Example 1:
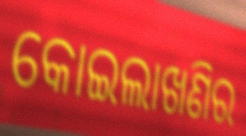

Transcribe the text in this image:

କୋଇଲାଖଣିର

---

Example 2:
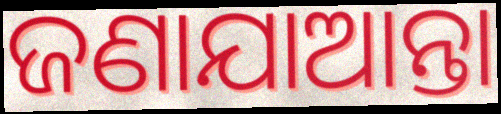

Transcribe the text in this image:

ଜଣାଯାଆନ୍ତା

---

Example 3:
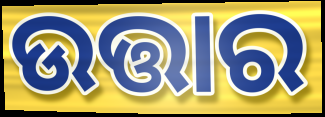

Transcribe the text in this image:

ଉତ୍ତାର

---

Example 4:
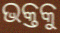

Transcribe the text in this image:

ଭକ୍ତକୁ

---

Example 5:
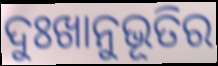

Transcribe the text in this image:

ଦୁଃଖାନୁଭୂତିର